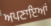
ਅਪਣਾਇਆਂ